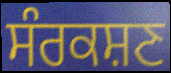
ਸੰਰਕਸ਼ਣ